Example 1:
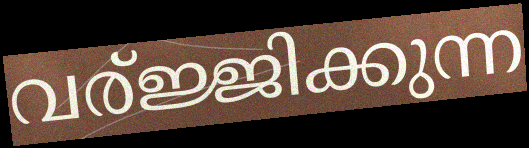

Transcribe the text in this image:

വര്ജ്ജിക്കുന്ന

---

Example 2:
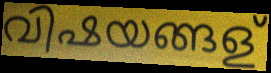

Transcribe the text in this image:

വിഷയങ്ങള്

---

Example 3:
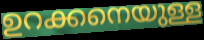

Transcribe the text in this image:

ഉറക്കനെയുള്ള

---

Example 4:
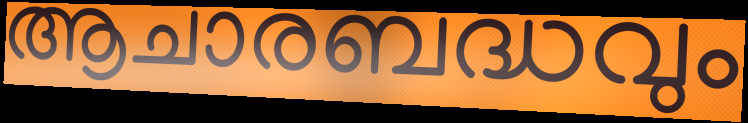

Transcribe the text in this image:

ആചാരബദ്ധവും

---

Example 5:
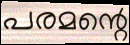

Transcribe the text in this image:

പരമന്റെ